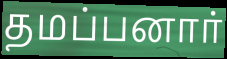
தமப்பனார்